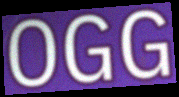
OGG